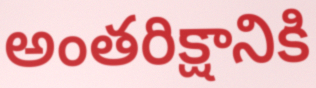
అంతరిక్షానికి